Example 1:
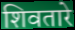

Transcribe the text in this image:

शिवतारे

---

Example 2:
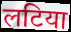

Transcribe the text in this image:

लटिया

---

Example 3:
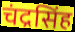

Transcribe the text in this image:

चंद्रसिंह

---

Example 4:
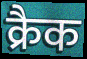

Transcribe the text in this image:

क्रैक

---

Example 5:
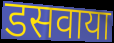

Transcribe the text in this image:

डसवाया